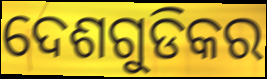
ଦେଶଗୁଡିକର